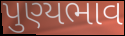
પુણ્યભાવ